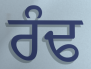
ਰੰਢ